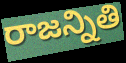
రాజన్నితి